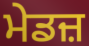
ਮੇਡਜ਼